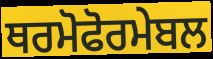
ਥਰਮੋਫੋਰਮੇਬਲ